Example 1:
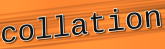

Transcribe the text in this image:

collation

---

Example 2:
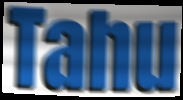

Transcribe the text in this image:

Tahu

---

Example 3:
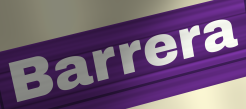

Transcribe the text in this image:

Barrera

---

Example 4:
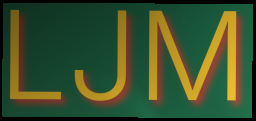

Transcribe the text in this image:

LJM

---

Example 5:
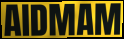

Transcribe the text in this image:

AIDMAM